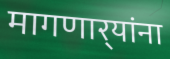
मागणार्‍यांना